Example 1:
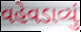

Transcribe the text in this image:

વહેવડાવ્યું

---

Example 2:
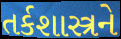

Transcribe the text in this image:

તર્કશાસ્ત્રને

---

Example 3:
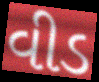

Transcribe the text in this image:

વીડ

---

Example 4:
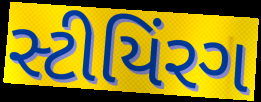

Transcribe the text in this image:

સ્ટીયિંરગ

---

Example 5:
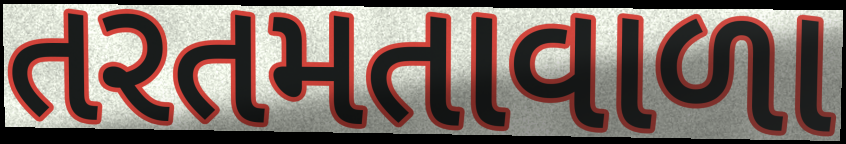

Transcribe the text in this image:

તરતમતાવાળા